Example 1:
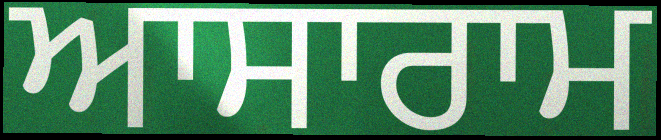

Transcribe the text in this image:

ਆਸਾਰਾਮ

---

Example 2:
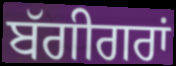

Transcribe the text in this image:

ਬੱਗੀਗਰਾਂ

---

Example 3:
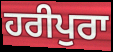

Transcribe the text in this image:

ਹਰੀਪੁਰਾ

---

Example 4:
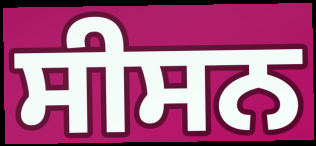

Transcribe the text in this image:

ਸੀਸਨ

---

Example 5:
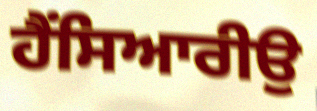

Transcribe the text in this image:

ਹੈਂਸਿਆਰੀਉ